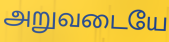
அறுவடையே